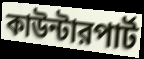
কাউন্টারপার্ট